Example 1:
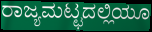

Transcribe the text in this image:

ರಾಜ್ಯಮಟ್ಟದಲ್ಲಿಯೂ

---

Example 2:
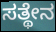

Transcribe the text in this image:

ಸತ್ಥೇನ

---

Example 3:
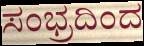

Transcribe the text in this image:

ಸಂಭ್ರದಿಂದ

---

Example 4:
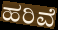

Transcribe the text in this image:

ಹರಿವೆ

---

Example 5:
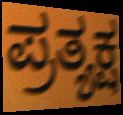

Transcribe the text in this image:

ಪ್ರತ್ಯಕ್ಷ